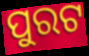
ପୁରଟ